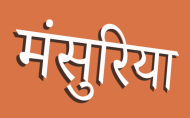
मंसुरिया